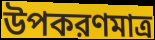
উপকরণমাত্র